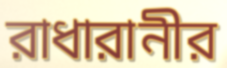
রাধারানীর